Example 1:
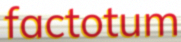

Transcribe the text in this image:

factotum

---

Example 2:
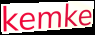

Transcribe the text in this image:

kemke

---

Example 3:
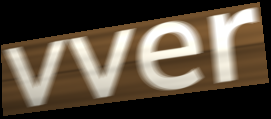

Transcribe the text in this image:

vver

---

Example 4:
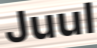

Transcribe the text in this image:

Juul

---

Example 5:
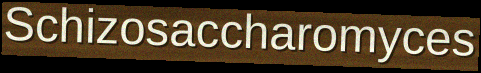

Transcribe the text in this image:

Schizosaccharomyces